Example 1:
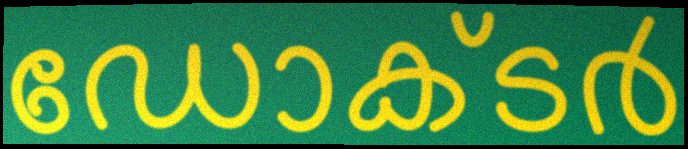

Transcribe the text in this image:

ഡോക്ടർ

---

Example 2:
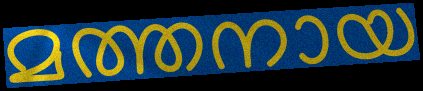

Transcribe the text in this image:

മത്തനായ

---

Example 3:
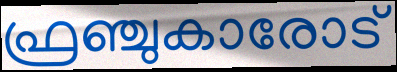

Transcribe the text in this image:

ഫ്രഞ്ചുകാരോട്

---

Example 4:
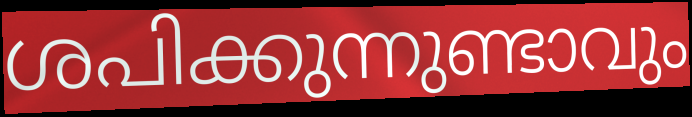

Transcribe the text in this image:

ശപിക്കുന്നുണ്ടാവും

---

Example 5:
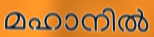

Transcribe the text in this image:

മഹാനിൽ